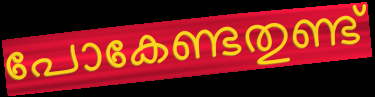
പോകേണ്ടതുണ്ട്